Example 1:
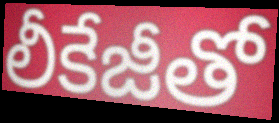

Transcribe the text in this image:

లీకేజీతో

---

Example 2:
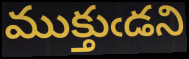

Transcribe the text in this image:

ముక్తుఁడని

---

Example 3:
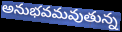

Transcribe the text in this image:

అనుభవమవుతున్న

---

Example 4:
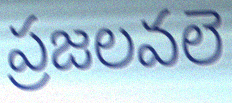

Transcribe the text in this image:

ప్రజలవలె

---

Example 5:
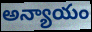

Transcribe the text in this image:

అన్యాయం